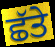
ਛੱਤੇ